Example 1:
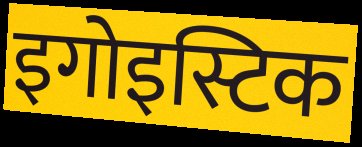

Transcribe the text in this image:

इगोइस्टिक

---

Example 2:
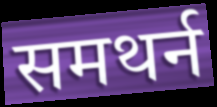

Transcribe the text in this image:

समथर्न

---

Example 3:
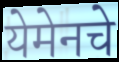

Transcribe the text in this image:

येमेनचे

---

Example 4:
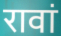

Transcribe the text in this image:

रावां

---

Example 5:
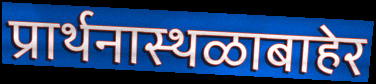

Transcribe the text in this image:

प्रार्थनास्थळाबाहेर